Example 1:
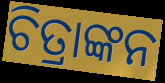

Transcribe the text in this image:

ଚିତ୍ରାଙ୍କନ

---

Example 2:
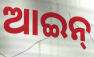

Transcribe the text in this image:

ଆଇନ୍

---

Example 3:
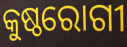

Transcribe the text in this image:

କୁଷ୍ଠରୋଗୀ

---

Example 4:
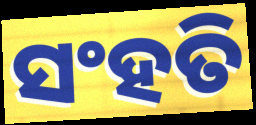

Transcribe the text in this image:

ସଂହତି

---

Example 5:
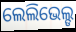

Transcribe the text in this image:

ଲେଲିଭେଲ୍ଡ